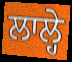
ਲਾਲ੍ਹੇ